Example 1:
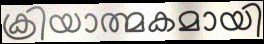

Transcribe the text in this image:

ക്രിയാത്മകമായി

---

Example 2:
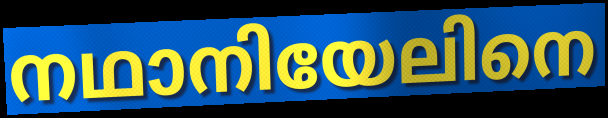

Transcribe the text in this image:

നഥാനിയേലിനെ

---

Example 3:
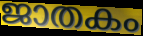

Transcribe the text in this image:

ജാതകം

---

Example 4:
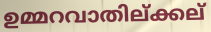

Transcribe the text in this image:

ഉമ്മറവാതില്ക്കല്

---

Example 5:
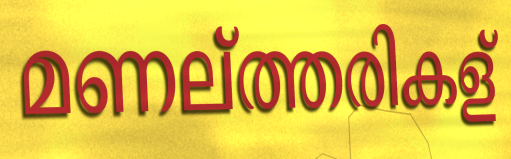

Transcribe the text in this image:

മണല്ത്തരികള്